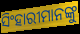
ସିଂହାରୀମାନଙ୍କୁ